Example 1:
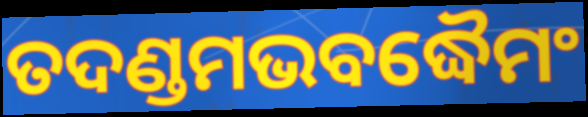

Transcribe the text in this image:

ତଦଣ୍ଡମଭବଦ୍ଧୈମଂ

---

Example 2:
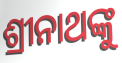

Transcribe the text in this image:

ଶ୍ରୀନାଥଙ୍କୁ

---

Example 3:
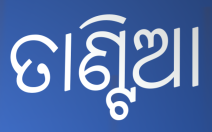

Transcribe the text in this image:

ତାଣ୍ଟିଆ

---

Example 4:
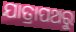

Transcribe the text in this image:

ଯାତ୍ରାପଥରୁ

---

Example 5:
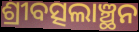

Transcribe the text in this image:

ଶ୍ରୀବତ୍ସଲାଞ୍ଛନ